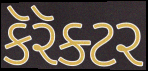
કૅરૅક્ટર